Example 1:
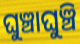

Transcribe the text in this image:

ଘୁଞ୍ଚାଘୁଞ୍ଚି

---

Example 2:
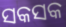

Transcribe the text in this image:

ସକସକ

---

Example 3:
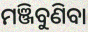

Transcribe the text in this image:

ମଞ୍ଜିବୁଣିବା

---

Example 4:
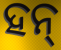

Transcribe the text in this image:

ହନ୍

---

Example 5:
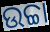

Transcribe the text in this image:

ଉଚ୍ଚା